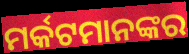
ମର୍କଟମାନଙ୍କର